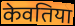
केवतिया